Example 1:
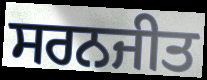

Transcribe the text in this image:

ਸਰਨਜੀਤ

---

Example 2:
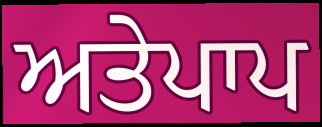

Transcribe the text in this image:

ਅਤੇਪਾਪ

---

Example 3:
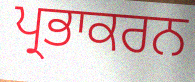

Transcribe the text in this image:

ਪ੍ਰਭਾਕਰਨ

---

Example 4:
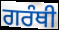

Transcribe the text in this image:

ਗਰੰਥੀ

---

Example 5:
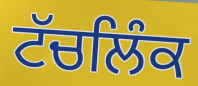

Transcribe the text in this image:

ਟੱਚਲਿੰਕ